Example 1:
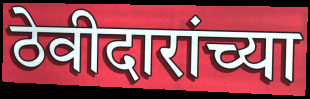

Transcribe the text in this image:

ठेवीदारांच्या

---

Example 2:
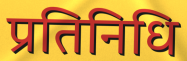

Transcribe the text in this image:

प्रतिनिधि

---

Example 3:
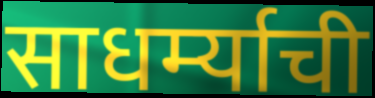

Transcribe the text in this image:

साधर्म्याची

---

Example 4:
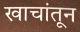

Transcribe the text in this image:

खाचांतून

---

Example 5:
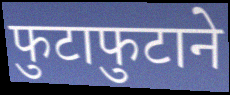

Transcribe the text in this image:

फुटाफुटाने